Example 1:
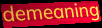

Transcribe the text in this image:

demeaning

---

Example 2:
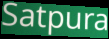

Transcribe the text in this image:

Satpura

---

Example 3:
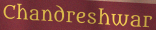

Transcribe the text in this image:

Chandreshwar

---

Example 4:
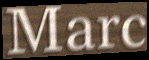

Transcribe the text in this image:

Marc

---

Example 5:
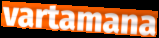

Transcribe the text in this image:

vartamana